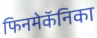
फिनमेकॅनिका